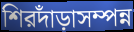
শিরদাঁড়াসম্পন্ন